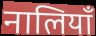
नालियाँ